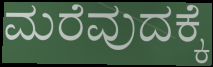
ಮರೆವುದಕ್ಕೆ